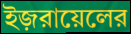
ইজ়রায়েলের